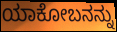
ಯಾಕೋಬನನ್ನು